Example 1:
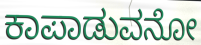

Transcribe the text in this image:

ಕಾಪಾಡುವನೋ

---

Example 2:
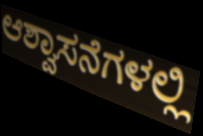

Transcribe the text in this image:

ಆಶ್ವಾಸನೆಗಳಲ್ಲಿ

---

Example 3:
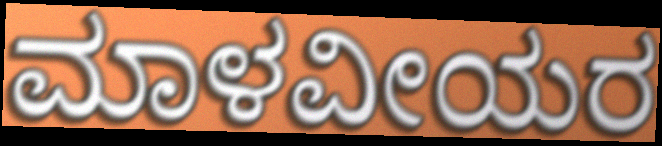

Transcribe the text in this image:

ಮಾಳವೀಯರ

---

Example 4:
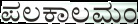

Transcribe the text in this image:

ಪಲಕಾಲಮಂ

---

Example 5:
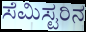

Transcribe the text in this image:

ಸೆಮಿಸ್ಟರಿನ